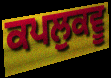
ਕਪਲੁਕਵੂ